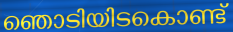
ഞൊടിയിടകൊണ്ട്